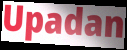
Upadan